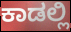
ಕಾಡಲ್ಲಿ